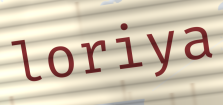
loriya